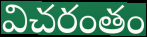
విచరంతం